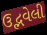
ઉદ્ભવેલી